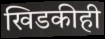
खिडकीही